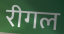
रीगल